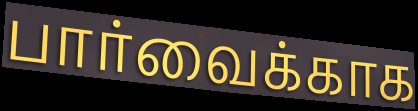
பார்வைக்காக